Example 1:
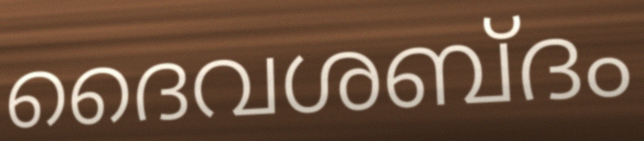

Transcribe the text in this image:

ദൈവശബ്ദം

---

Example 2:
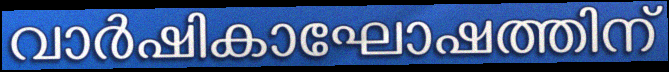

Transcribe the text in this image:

വാർഷികാഘോഷത്തിന്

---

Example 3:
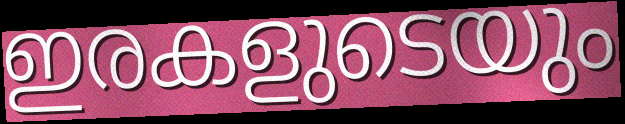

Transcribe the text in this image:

ഇരകളുടെയും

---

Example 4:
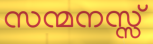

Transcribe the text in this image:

സന്മനസ്സ്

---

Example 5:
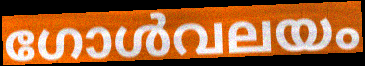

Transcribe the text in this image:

ഗോൾവലയം